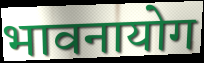
भावनायोग